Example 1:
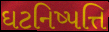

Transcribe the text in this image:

ઘટનિષ્પત્તિ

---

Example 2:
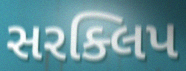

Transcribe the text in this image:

સરક્લિપ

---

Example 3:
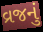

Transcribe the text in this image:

વ્રજનું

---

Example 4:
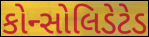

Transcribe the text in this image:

કોન્સોલિડેટેડ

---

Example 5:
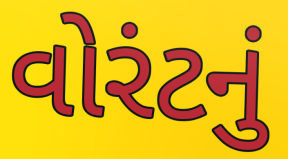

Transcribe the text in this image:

વોરંટનું